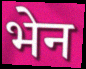
भेन